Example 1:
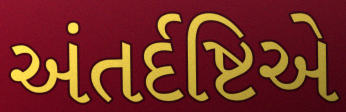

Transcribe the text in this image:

અંતર્દષ્ટિએ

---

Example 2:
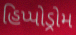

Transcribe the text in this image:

હિપ્પોડ્રોમ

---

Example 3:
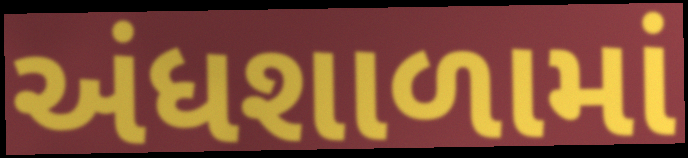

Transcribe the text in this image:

અંધશાળામાં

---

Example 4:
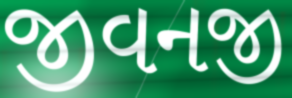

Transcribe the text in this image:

જીવનજી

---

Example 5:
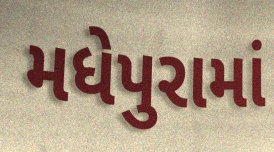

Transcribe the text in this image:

મધેપુરામાં